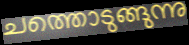
ചത്തൊടുങ്ങുന്നു